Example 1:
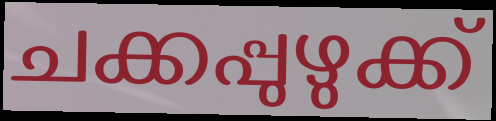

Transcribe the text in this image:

ചക്കപ്പുഴുക്ക്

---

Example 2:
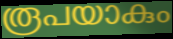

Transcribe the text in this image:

രൂപയാകും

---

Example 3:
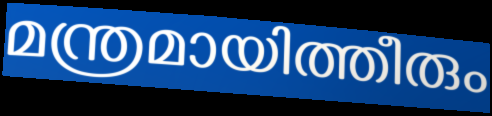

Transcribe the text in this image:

മന്ത്രമായിത്തീരും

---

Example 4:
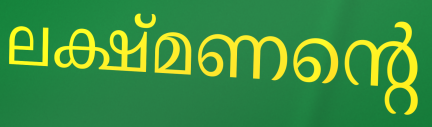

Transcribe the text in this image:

ലക്ഷ്മണന്റെ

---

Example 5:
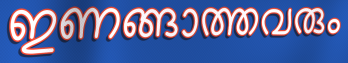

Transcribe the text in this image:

ഇണങ്ങാത്തവരും